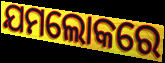
ଯମଲୋକରେ